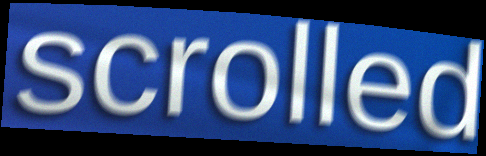
scrolled